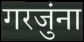
गरजुंना